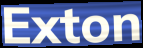
Exton